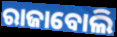
ରାଜାବୋଲି